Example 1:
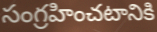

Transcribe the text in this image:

సంగ్రహించటానికి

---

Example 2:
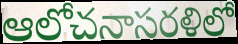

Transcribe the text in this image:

ఆలోచనాసరళిలో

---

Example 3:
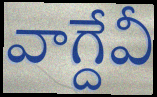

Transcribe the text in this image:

వాగ్దేవీ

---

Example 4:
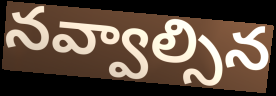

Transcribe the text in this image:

నవ్వాల్సిన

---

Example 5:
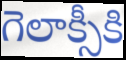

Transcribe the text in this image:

గెలాక్సీకి